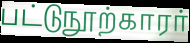
பட்டுநூற்காரர்